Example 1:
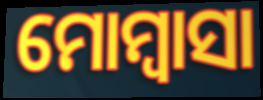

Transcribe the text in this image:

ମୋମ୍ବାସା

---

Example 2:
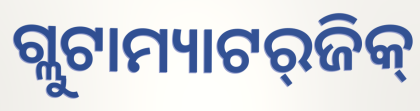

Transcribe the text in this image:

ଗ୍ଲୁଟାମ୍ୟାଟର୍‌ଜିକ୍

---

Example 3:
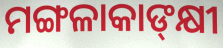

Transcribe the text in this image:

ମଙ୍ଗଳାକାଙ୍‍କ୍ଷୀ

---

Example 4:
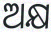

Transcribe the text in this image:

ଅକ୍ଷ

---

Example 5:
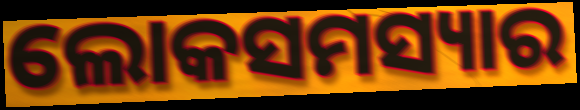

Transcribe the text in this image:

ଲୋକସମସ୍ୟାର